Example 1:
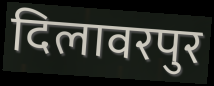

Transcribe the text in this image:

दिलावरपुर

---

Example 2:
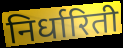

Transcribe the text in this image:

निर्धारिती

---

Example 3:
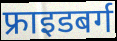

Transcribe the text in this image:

फ्राइडबर्ग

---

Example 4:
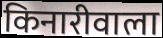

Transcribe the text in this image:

किनारीवाला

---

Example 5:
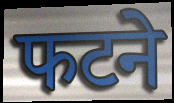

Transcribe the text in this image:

फटने